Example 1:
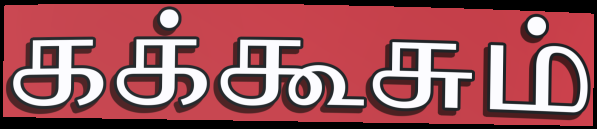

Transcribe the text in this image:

கக்கூசும்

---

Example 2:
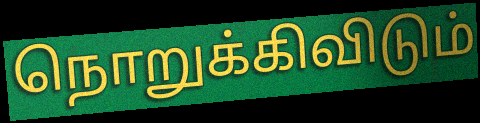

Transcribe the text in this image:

நொறுக்கிவிடும்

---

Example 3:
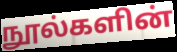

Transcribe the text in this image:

நூல்களின்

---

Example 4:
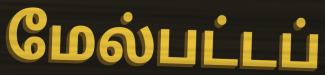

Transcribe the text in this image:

மேல்பட்டப்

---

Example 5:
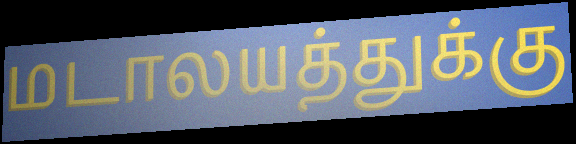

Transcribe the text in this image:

மடாலயத்துக்கு